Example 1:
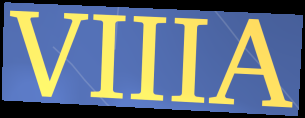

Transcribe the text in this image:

VIIIA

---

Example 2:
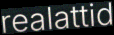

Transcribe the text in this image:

realattid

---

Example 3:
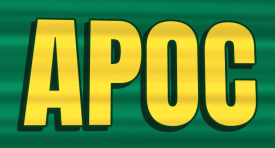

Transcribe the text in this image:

APOC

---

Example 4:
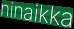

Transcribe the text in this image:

ninaikka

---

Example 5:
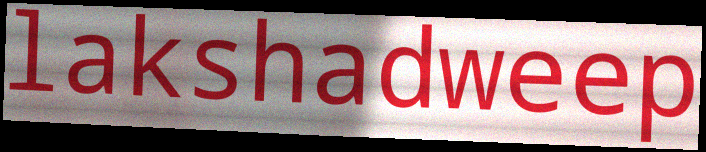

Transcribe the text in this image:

lakshadweep